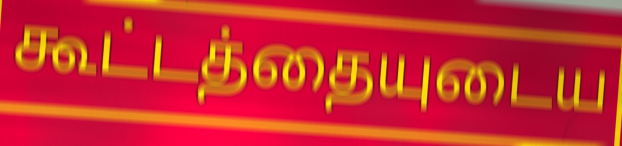
கூட்டத்தையுடைய